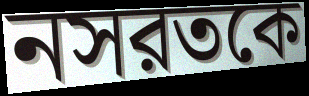
নসরতকে